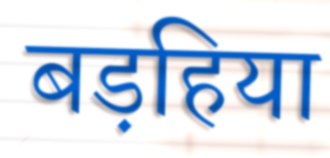
बड़हिया